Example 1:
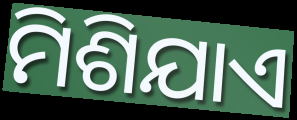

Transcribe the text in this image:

ମିଶିଯାଏ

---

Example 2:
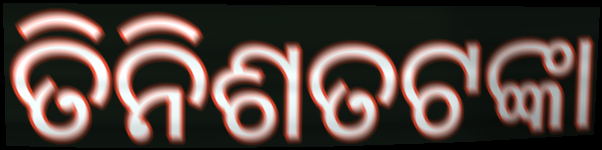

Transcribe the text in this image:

ତିନିଶତଟଙ୍କା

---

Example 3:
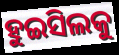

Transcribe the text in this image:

ହୁଇସିଲକୁ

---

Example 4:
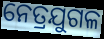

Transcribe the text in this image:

ନେତ୍ରଯୁଗଳ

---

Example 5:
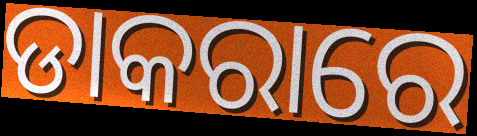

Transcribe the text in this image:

ଡାକରାରେ